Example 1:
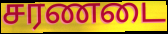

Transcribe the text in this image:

சரணடை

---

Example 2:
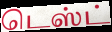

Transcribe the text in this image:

டெஸ்ட்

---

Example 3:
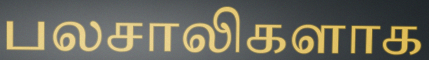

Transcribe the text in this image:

பலசாலிகளாக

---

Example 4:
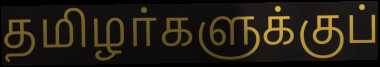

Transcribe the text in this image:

தமிழர்களுக்குப்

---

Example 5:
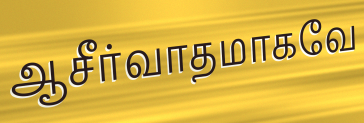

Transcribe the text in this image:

ஆசீர்வாதமாகவே